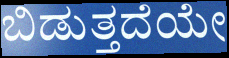
ಬಿಡುತ್ತದೆಯೇ